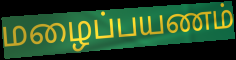
மழைப்பயணம்